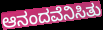
ಆನಂದವೆನಿಸಿತು